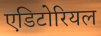
एडिटोरियल